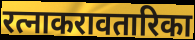
रत्नाकरावतारिका